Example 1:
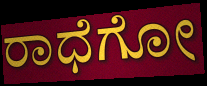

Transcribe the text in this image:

ರಾಧೆಗೋ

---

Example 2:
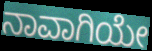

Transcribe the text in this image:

ನಾವಾಗಿಯೇ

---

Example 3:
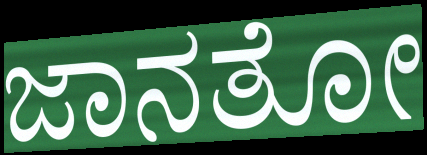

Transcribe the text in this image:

ಜಾನತೋ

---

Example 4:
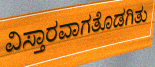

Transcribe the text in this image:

ವಿಸ್ತಾರವಾಗತೊಡಗಿತು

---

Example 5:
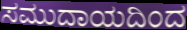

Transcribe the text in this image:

ಸಮುದಾಯದಿಂದ